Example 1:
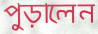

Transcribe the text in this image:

পুড়ালেন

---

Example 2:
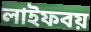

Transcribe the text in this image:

লাইফবয়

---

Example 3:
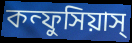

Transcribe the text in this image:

কন্ফুসিয়াস্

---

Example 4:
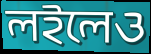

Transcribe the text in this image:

লইলেও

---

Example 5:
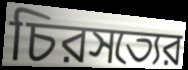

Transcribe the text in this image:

চিরসত্যের